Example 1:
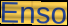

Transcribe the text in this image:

Enso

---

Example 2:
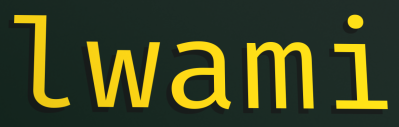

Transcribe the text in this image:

lwami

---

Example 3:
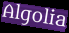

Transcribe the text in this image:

Algolia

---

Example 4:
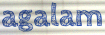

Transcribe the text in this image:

agalam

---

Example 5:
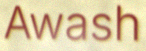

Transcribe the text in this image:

Awash